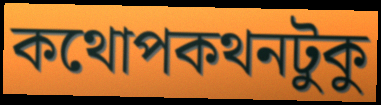
কথোপকথনটুকু